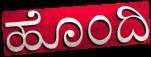
ಹೊಂದಿ